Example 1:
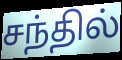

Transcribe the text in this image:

சந்தில்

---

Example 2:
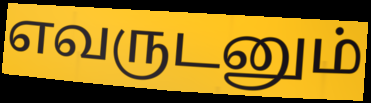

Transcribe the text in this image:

எவருடனும்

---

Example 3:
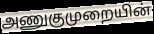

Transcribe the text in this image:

அணுகுமுறையின்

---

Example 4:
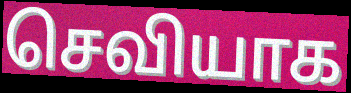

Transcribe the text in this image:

செவியாக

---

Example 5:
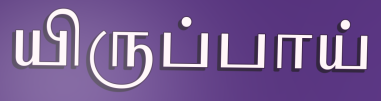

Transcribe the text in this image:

யிருப்பாய்